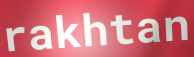
rakhtan